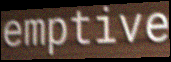
emptive